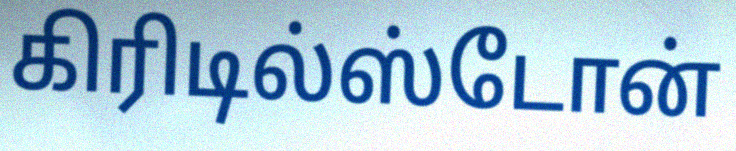
கிரிடில்ஸ்டோன்